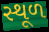
સ્‍થૂળ